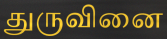
துருவினை